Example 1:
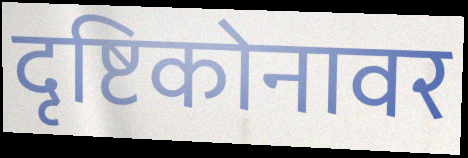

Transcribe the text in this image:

दृष्टिकोनावर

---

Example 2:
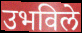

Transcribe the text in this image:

उभविले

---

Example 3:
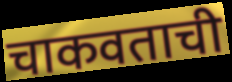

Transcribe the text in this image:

चाकवताची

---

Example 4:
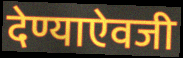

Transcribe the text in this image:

देण्याऐवजी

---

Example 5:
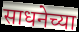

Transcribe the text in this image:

साधनेच्या